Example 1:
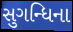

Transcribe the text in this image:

સુગન્ધિના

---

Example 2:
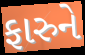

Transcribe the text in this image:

ફારુને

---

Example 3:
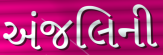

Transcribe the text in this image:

અંજલિની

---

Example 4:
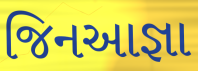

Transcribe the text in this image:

જિનઆજ્ઞા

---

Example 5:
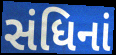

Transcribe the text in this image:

સંધિનાં